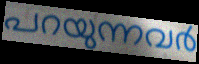
പറയുന്നവർ